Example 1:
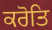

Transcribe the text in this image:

ਕਰੋਤਿ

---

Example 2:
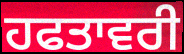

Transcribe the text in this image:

ਹਫਤਾਵਰੀ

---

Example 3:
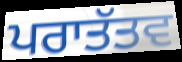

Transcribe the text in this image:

ਪਰਾਤੱਤਵ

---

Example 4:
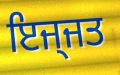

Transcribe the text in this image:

ਇਜ੍ਜਤ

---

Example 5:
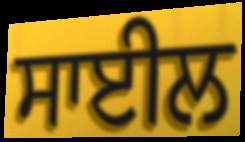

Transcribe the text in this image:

ਸਾਈਲ